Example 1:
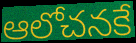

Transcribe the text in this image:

ఆలోచనకే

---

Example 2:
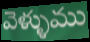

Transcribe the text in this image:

వెళ్ళుము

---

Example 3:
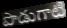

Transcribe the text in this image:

పొడుగాటి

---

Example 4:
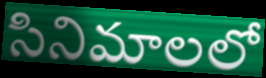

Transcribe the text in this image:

సినిమాలలో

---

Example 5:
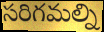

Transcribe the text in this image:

సరిగమల్ని